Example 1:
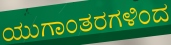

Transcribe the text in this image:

ಯುಗಾಂತರಗಳಿಂದ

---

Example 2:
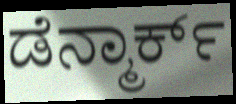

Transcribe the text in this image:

ಡೆನ್ಮಾರ್ಕ್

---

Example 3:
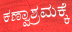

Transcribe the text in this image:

ಕಣ್ವಾಶ್ರಮಕ್ಕೆ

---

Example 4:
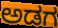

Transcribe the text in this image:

ಅಡಗ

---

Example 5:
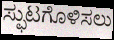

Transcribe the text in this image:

ಸ್ಫುಟಗೊಳಿಸಲು